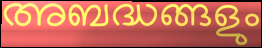
അബദ്ധങ്ങളും